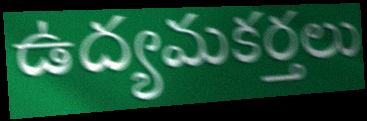
ఉద్యమకర్తలు